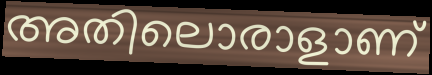
അതിലൊരാളാണ്